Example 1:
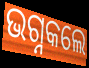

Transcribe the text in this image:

ଭଗ୍ନକଲେ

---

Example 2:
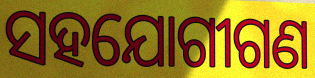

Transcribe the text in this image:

ସହଯୋଗୀଗଣ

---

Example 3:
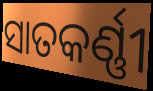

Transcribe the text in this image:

ସାତକର୍ଣ୍ଣୀ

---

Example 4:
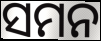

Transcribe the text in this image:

ସମନ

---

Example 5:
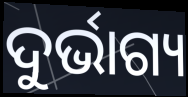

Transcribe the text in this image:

ଦୁର୍ଭାଗ୍ୟ